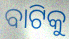
ବାଟିକୁ